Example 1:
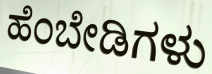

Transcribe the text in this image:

ಹೆಂಬೇಡಿಗಳು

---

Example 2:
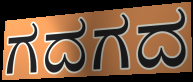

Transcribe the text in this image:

ಗದಗದ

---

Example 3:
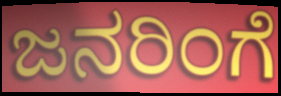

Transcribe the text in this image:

ಜನರಿಂಗೆ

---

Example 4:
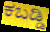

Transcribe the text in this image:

ಕಬಡ್ಡಿ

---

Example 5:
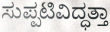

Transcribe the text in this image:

ಸುಪ್ಪಟಿವಿದ್ಧತ್ತಾ